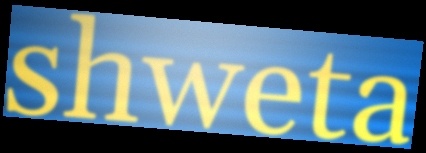
shweta